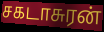
சகடாசுரன்